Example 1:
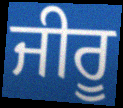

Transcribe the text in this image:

ਜੀਰੂ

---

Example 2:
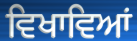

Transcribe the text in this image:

ਵਿਖਾਵਿਆਂ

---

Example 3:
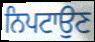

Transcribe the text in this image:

ਨਿਪਟਾਉਣ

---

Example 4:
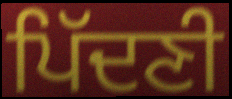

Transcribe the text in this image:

ਪਿੱਦਣੀ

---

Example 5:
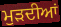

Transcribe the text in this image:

ਮੁੜਦੀਆਂ